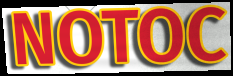
NOTOC